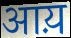
आय़